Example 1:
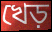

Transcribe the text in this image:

খেড়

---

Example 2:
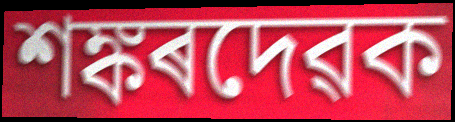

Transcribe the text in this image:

শঙ্কৰদেৱক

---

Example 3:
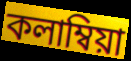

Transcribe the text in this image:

কলাম্বিয়া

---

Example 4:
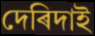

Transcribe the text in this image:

দেৰিদাই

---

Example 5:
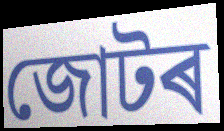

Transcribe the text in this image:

জোটৰ